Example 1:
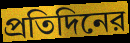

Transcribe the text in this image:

প্রতিদিনের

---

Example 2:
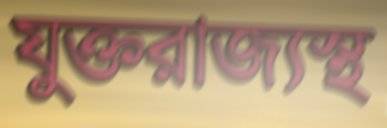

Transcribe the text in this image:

যুক্তরাজ্যস্থ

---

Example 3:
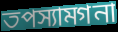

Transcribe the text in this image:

তপস্যামগনা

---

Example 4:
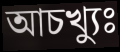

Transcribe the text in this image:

আচখ্যুঃ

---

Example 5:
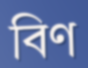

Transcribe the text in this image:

বিণ